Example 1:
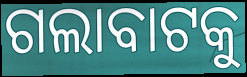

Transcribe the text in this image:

ଗଲାବାଟକୁ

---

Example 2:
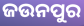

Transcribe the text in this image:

ଜଉନପୁର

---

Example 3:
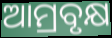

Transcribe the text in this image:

ଆମ୍ରବୃକ୍ଷ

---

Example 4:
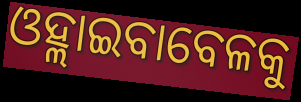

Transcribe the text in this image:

ଓହ୍ଲାଇବାବେଳକୁ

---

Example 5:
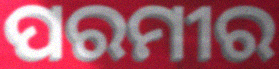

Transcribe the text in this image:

ପରମୀର